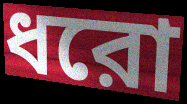
ধরো